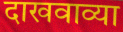
दाखवाव्या